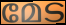
മേട